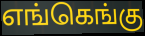
எங்கெங்கு